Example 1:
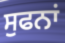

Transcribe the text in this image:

ਸੁਫਨਾਂ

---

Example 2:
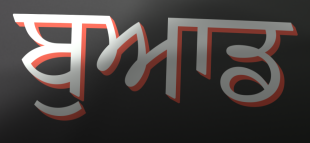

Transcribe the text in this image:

ਬੁਆਡ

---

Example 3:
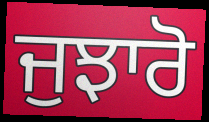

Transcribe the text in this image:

ਜੁਝਾਰੋ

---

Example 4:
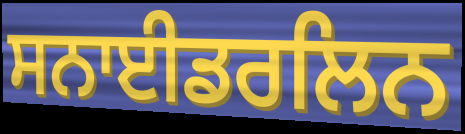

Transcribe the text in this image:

ਸਨਾਈਡਰਲਿਨ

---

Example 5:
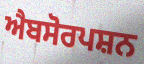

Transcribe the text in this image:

ਐਬਸੋਰਪਸ਼ਨ